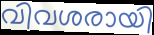
വിവശരായി